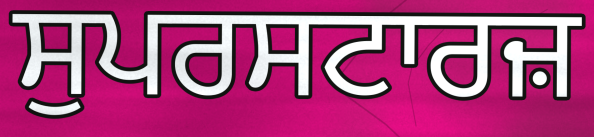
ਸੁਪਰਸਟਾਰਜ਼